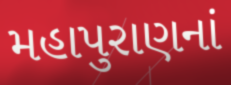
મહાપુરાણનાં